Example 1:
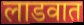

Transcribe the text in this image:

लाडवात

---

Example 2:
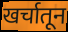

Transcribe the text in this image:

खर्चातून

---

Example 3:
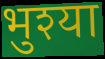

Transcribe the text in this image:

भुश्या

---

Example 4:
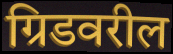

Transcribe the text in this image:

ग्रिडवरील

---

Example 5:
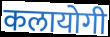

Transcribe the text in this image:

कलायोगी